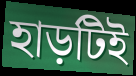
হাড়টিই